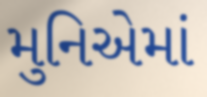
મુનિએમાં